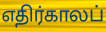
எதிர்காலப்